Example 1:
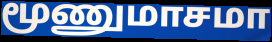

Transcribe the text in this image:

மூணுமாசமா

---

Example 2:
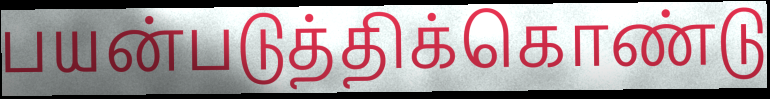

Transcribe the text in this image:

பயன்படுத்திக்கொண்டு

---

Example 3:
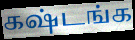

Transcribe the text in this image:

கஷ்டங்க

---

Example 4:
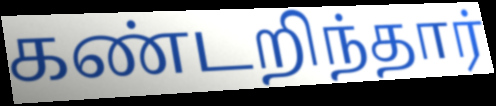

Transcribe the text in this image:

கண்டறிந்தார்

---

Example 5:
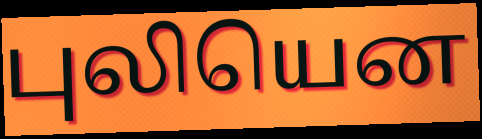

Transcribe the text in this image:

புலியென